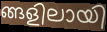
ങ്ങളിലായി